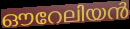
ഔറേലിയൻ